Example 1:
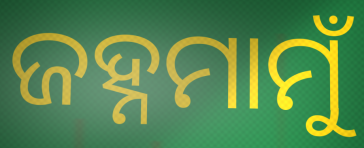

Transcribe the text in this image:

ଜହ୍ନମାମୁଁ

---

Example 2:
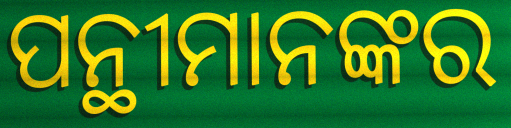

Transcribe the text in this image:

ପନ୍ଥୀମାନଙ୍କର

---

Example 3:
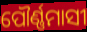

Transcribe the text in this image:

ପୌର୍ଣ୍ଣମାସୀ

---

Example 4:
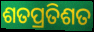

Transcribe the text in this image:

ଶତପ୍ରତିଶତ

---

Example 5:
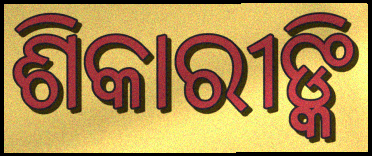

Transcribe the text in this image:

ଶିକାରୀଙ୍କି